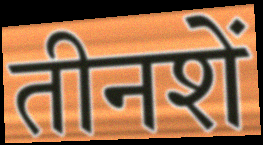
तीनशें